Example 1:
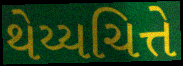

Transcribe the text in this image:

થેય્યચિત્તે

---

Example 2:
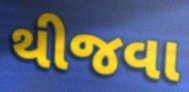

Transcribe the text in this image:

થીજવા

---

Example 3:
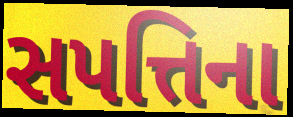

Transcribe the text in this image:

સપત્તિના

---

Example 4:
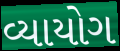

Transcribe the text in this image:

વ્યાયોગ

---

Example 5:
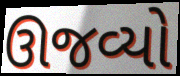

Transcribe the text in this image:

ઊજવ્યો